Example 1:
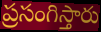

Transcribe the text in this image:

ప్రసంగిస్తారు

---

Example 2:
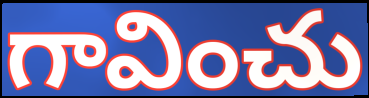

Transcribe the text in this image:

గావించు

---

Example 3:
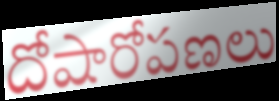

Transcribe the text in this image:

దోషారోపణలు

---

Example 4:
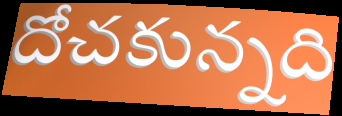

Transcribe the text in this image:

దోచకున్నది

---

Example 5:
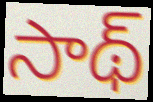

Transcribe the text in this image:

సాథ్